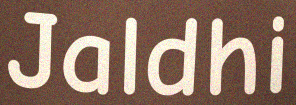
Jaldhi